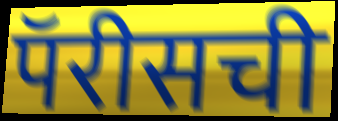
पॅरीसची